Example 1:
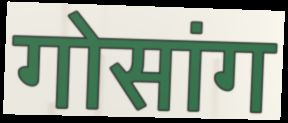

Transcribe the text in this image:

गोसांग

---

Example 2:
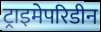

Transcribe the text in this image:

ट्राइमेपरिडीन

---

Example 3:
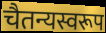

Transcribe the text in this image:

चैतन्यस्वरूप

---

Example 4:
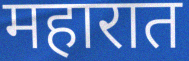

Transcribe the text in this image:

महारात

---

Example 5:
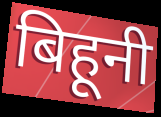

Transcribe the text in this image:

बिहूनी